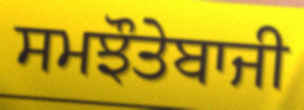
ਸਮਝੌਤੇਬਾਜੀ